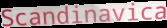
Scandinavica